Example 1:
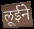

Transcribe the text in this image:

लूईने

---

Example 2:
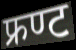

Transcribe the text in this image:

फ्रण्ट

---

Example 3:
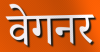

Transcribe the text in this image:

वेगनर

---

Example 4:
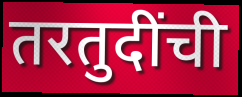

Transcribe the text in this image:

तरतुदींची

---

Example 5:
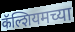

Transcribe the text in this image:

कॅल्शियमच्या